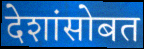
देशांसोबत